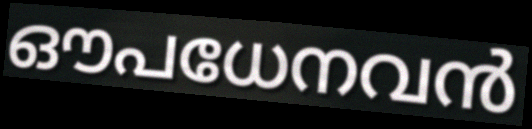
ഔപധേനവൻ